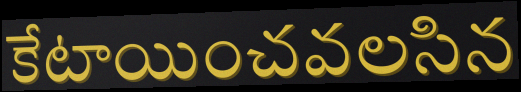
కేటాయించవలసిన